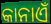
କାନାଏଁ